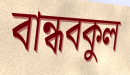
বান্ধবকুল